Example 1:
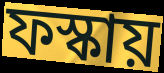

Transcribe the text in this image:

ফস্কায়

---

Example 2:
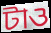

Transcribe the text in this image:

টাও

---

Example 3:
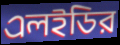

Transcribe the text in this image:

এলইডির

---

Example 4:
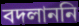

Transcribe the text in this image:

বদলাননি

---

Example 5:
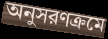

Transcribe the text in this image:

অনুসরণক্রমে